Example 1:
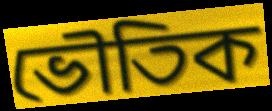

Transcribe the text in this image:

ভৌতিক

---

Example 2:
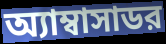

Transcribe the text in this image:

অ্যাম্বাসাডর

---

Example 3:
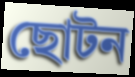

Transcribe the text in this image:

ছোটন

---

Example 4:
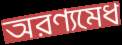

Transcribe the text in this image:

অরণ্যমেধ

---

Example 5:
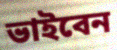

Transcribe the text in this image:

ভাইবেন